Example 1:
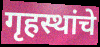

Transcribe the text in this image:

गृहस्थांचे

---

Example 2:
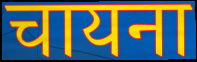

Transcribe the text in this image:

चायना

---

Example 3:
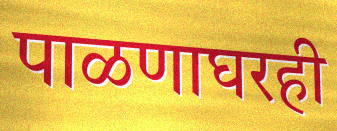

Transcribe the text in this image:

पाळणाघरही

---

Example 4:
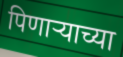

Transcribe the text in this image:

पिणाऱ्याच्या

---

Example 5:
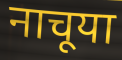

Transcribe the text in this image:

नाचूया